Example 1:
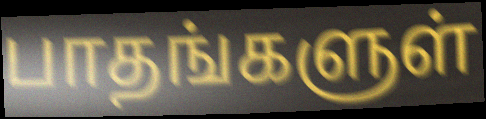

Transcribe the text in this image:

பாதங்களுள்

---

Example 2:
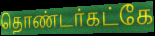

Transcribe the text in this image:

தொண்டர்கட்கே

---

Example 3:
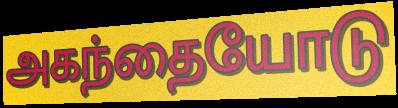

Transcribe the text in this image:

அகந்தையோடு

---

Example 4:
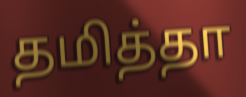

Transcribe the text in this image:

தமித்தா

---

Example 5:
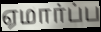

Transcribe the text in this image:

ஏமார்ப்ப